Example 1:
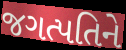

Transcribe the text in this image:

જગત્પતિને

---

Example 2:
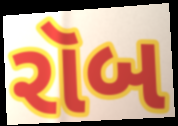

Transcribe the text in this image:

રૉબ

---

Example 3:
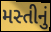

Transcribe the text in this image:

મસ્તીનું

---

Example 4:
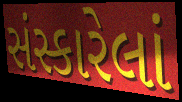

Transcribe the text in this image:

સંસ્કારેલાં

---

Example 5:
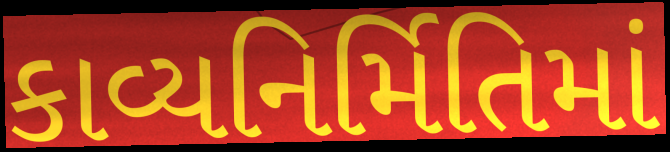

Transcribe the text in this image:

કાવ્યનિર્મિતિમાં